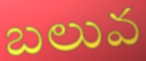
బలువ